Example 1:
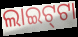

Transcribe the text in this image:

ଲାଇଟ୍‍ଟା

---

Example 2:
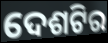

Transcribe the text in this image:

ଦେଶଟିର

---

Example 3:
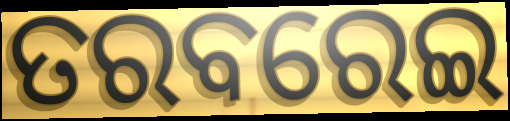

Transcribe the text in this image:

ତରବରେଇ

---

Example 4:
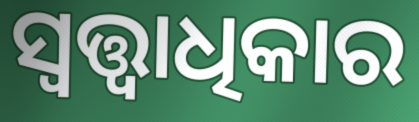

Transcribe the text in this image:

ସ୍ୱତ୍ତ୍ୱାଧିକାର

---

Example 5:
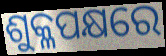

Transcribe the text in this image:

ଶୁକ୍ଳପକ୍ଷରେ